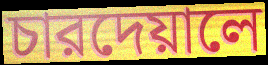
চারদেয়ালে